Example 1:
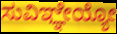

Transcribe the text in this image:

ಸುವಿಞ್ಞೇಯ್ಯೋ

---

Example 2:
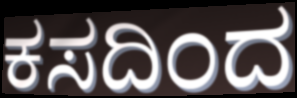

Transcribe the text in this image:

ಕಸದಿಂದ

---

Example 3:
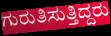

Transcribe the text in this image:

ಗುರುತಿಸುತ್ತಿದ್ದರು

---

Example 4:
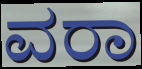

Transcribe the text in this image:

ವರಾ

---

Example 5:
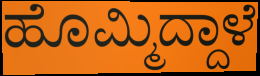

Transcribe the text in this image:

ಹೊಮ್ಮಿದ್ದಾಳೆ